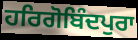
ਹਰਿਗੋਬਿੰਦਪੁਰਾ